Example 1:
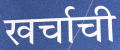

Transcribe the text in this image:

खर्चाची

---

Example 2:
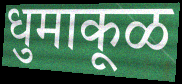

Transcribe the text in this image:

धुमाकूळ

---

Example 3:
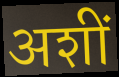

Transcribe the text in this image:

अशीं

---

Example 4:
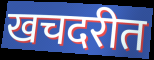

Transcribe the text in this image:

खचदरीत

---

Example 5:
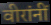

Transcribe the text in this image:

वीरांनीं